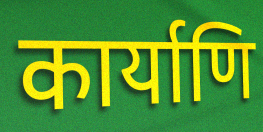
कार्याणि